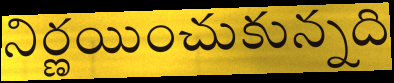
నిర్ణయించుకున్నది